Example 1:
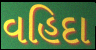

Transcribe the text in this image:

વહિદા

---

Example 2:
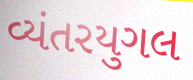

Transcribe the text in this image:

વ્યંતરયુગલ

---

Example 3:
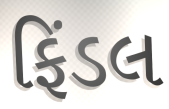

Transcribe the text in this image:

ફિંડલ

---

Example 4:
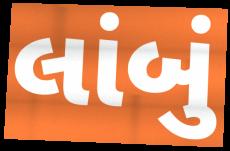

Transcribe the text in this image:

લાંબું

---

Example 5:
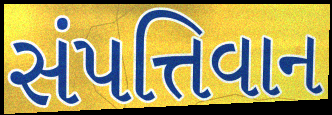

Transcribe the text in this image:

સંપત્તિવાન